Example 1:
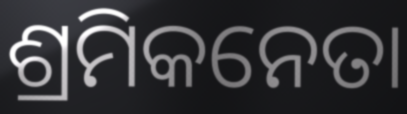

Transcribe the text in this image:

ଶ୍ରମିକନେତା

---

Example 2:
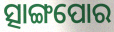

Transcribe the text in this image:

ତ୍ସାଙ୍ଗପୋର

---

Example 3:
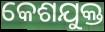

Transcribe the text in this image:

କେଶଯୁକ୍ତ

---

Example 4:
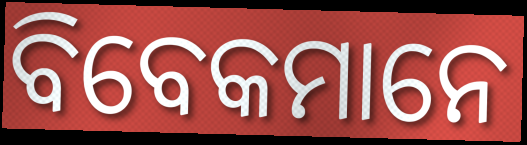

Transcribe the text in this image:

ବିବେକମାନେ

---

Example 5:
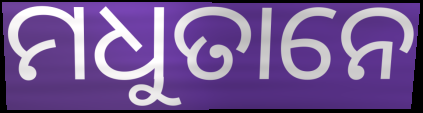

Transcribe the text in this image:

ମଧୁତାନେ